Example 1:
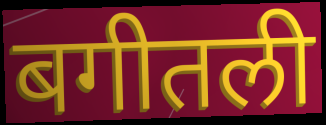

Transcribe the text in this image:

बगीतली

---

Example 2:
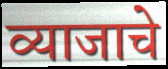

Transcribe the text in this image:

व्याजाचे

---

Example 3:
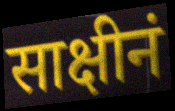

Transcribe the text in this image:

साक्षीनं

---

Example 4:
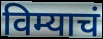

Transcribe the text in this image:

विम्याचं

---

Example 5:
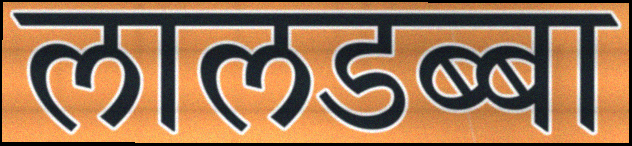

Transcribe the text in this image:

लालडब्बा